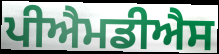
ਪੀਐਮਡੀਐਸ